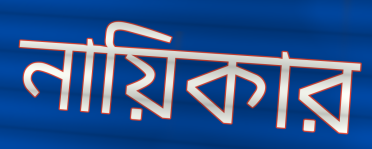
নায়িকার